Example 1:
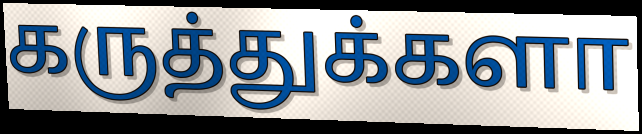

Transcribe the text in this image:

கருத்துக்களா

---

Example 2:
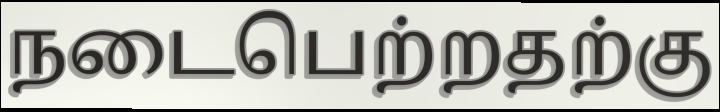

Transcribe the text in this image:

நடைபெற்றதற்கு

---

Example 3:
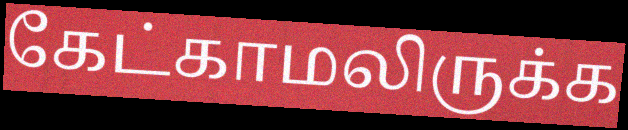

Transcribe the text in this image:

கேட்காமலிருக்க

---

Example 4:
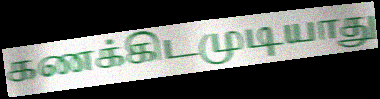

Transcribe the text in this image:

கணக்கிடமுடியாது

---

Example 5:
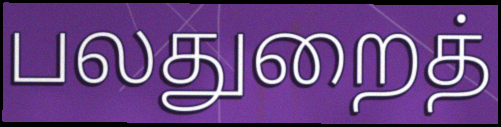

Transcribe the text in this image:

பலதுறைத்